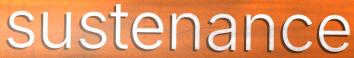
sustenance